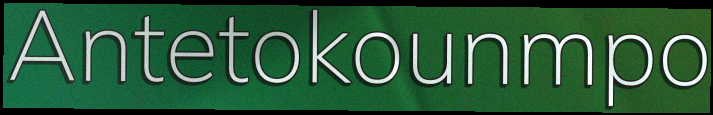
Antetokounmpo